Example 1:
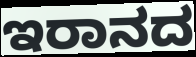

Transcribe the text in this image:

ಇರಾನದ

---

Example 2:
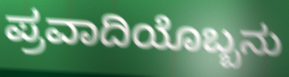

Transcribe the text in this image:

ಪ್ರವಾದಿಯೊಬ್ಬನು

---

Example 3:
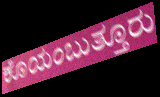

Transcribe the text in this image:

ಕೊಯಂಬುತ್ತೂರು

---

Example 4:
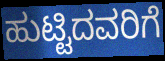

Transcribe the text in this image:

ಹುಟ್ಟಿದವರಿಗೆ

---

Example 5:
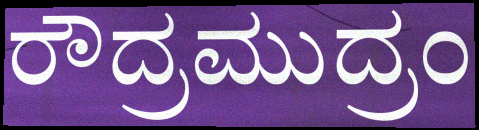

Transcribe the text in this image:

ರೌದ್ರಮುದ್ರಂ